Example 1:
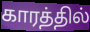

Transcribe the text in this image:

காரத்தில்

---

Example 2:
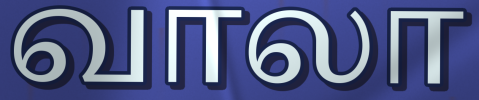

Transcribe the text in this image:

வாலா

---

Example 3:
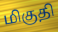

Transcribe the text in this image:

மிகுதி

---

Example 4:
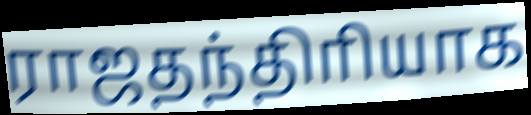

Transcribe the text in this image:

ராஜதந்திரியாக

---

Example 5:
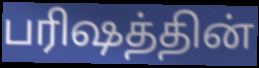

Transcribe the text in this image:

பரிஷத்தின்